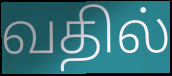
வதில்